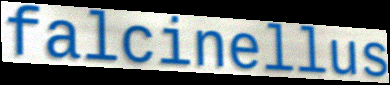
falcinellus